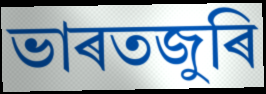
ভাৰতজুৰি